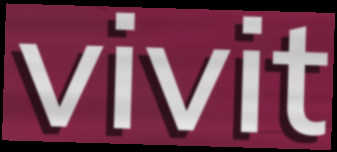
vivit